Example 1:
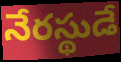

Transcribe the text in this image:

నేరస్థుడే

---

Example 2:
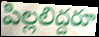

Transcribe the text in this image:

పిల్లలిద్దరూ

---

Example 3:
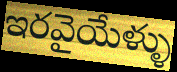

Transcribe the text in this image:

ఇరవైయేళ్ళు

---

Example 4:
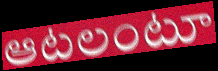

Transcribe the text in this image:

ఆటలంటూ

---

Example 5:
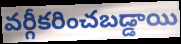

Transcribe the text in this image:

వర్గీకరించబడ్డాయి